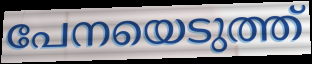
പേനയെടുത്ത്